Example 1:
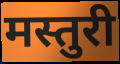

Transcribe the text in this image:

मस्तुरी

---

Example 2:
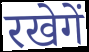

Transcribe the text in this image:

रखेगें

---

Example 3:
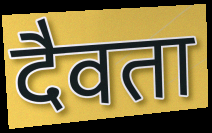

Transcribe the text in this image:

दैवता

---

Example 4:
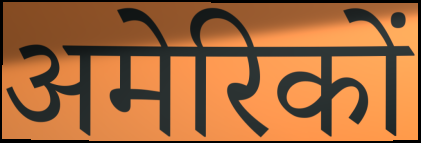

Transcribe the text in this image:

अमेरिकों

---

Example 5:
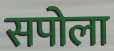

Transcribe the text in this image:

सपोला